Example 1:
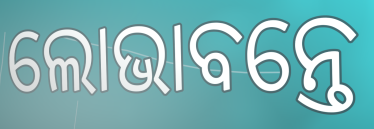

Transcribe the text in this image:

ଲୋଭାବନ୍ତେ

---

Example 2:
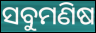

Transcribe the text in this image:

ସବୁମଣିଷ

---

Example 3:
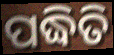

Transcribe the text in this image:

ପଦ୍ଧିତି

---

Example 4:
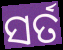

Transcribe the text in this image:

ସର୍ତ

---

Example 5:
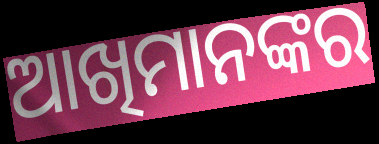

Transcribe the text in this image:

ଆଖିମାନଙ୍କର